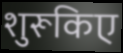
शुरूकिए